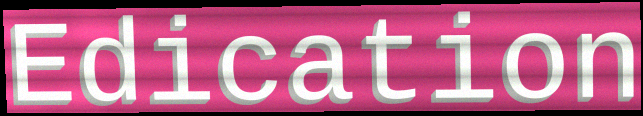
Edication